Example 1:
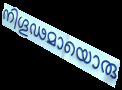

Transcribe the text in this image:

നിഗൂഢമായൊരു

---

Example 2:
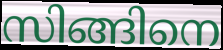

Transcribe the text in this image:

സിങ്ങിനെ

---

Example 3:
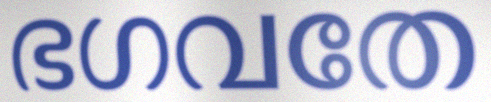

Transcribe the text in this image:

ഭഗവതേ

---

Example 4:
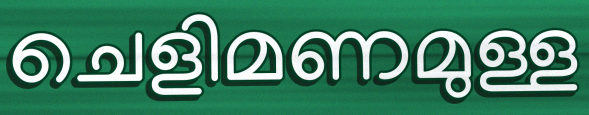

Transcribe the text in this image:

ചെളിമണമുള്ള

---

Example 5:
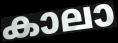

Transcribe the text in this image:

കാലാ